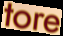
tore